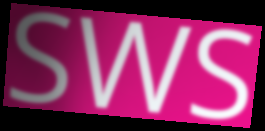
SWS